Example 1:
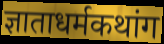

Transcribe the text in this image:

ज्ञाताधर्मकथांग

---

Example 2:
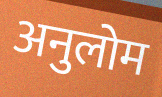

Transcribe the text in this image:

अनुलोम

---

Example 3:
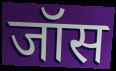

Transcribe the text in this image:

जॉस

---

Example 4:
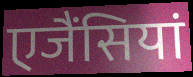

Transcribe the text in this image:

एजैंसियां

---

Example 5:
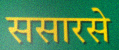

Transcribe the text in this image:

ससारसे